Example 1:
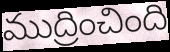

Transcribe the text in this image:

ముద్రించింది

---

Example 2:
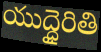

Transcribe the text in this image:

యుద్ధైరితి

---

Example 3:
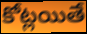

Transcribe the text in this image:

కోట్లయితే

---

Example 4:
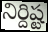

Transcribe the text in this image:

నిర్దిష్ట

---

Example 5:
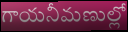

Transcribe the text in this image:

గాయనీమణుల్లో